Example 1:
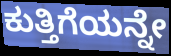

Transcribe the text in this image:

ಕುತ್ತಿಗೆಯನ್ನೇ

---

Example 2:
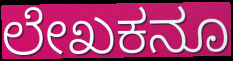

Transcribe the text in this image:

ಲೇಖಕನೂ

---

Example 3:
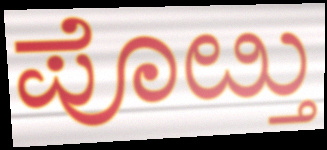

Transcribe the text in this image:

ಪೊೞ್ತು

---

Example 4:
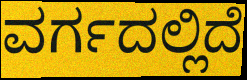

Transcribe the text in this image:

ವರ್ಗದಲ್ಲಿದೆ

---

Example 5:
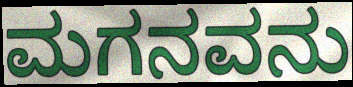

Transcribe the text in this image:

ಮಗನವನು